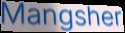
Mangsher